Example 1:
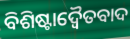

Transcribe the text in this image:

ବିଶିଷ୍ଟାଦ୍ଵୈତବାଦ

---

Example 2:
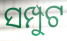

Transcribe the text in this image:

ସମ୍ପୁଟ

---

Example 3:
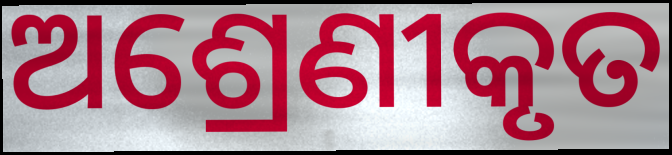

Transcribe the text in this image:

ଅଶ୍ରେଣୀକୃତ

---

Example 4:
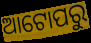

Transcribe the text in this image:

ଆଟୋପରୁ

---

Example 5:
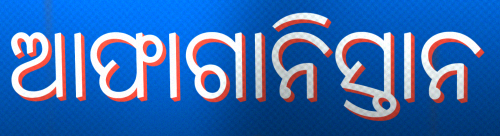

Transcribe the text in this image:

ଆଫାଗାନିସ୍ତାନ